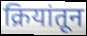
क्रियांतून